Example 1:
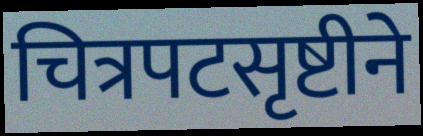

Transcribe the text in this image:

चित्रपटसृष्टीने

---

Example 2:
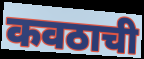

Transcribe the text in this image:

कवठाची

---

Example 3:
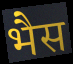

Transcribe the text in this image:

भैस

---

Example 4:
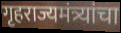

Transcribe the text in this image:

गृहराज्यमंत्र्यांचा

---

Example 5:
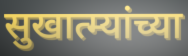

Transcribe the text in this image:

सुखात्म्यांच्या